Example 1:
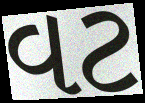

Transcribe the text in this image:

વટ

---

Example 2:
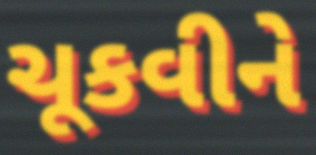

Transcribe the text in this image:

ચૂકવીને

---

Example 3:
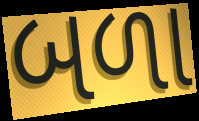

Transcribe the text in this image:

બળા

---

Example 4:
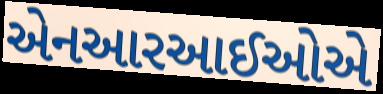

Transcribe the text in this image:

એનઆરઆઈઓએ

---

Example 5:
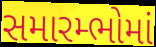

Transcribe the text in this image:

સમારમ્ભોમાં